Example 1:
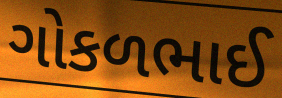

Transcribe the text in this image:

ગોકળભાઈ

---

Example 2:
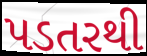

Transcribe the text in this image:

પડતરથી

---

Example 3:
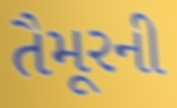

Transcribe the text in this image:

તૈમૂરની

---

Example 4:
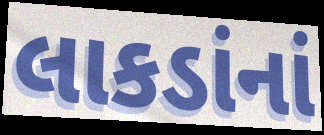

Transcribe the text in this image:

લાકડાંનાં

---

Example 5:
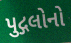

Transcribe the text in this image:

પુદ્ગલોનો